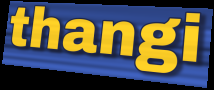
thangi